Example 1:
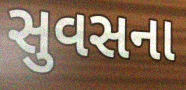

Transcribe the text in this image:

સુવસના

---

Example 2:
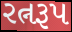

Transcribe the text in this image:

રત્નરૂપ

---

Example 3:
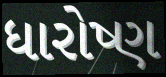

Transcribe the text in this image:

ધારોષ્ણ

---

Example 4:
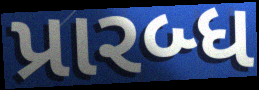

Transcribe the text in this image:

પ્રારબ્ધ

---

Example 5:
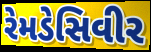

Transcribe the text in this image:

રેમડેસિવીર